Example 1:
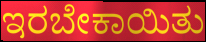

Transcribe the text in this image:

ಇರಬೇಕಾಯಿತು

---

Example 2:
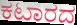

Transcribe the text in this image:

ಕಟಾರದ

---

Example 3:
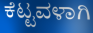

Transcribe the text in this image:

ಕೆಟ್ಟವಳಾಗಿ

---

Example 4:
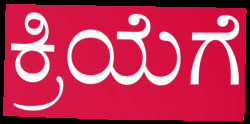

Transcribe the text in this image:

ಕ್ರಿಯೆಗೆ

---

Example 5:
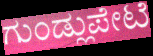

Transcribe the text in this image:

ಗುಂಡ್ಲುಪೇಟೆ